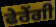
ਫੇਰੇਂਗੀ